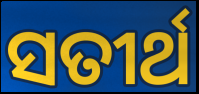
ସତୀର୍ଥ